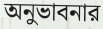
অনুভাবনার